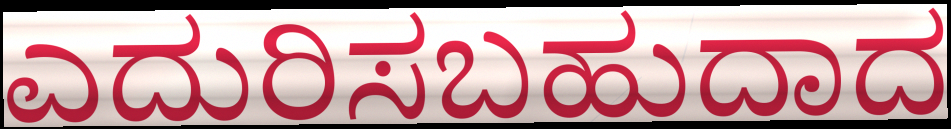
ಎದುರಿಸಬಹುದಾದ